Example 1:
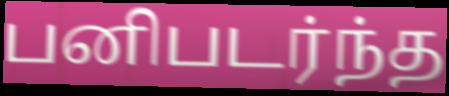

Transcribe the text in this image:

பனிபடர்ந்த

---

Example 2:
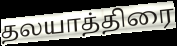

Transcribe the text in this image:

தலயாத்திரை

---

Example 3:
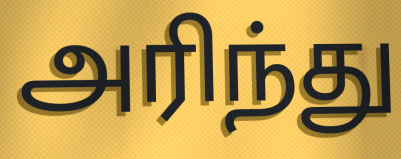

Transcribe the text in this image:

அரிந்து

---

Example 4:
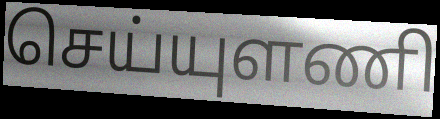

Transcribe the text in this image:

செய்யுளணி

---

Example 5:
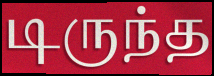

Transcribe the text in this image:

டிருந்த